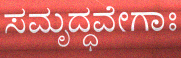
ಸಮೃದ್ಧವೇಗಾಃ